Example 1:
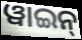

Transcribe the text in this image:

ୱାଇନ୍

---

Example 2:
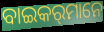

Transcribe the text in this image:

ବାଇକର୍‌ମାନେ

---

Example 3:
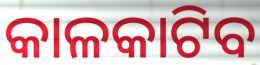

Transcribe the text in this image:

କାଳକାଟିବ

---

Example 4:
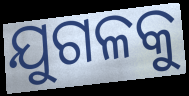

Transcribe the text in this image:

ଯୁଗଳକୁ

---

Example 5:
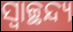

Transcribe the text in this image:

ସ୍ୱାଚ୍ଛନ୍ଦ୍ୟ